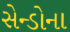
સેન્ડોના